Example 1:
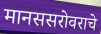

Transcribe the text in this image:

मानससरोवराचे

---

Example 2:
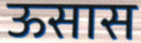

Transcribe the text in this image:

ऊसास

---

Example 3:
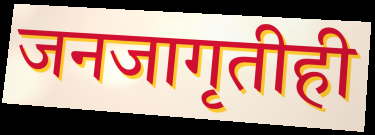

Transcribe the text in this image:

जनजागृतीही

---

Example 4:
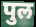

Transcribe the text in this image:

पुल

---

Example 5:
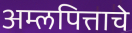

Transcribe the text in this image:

अम्लपित्ताचे